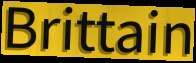
Brittain